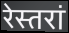
रेस्तरां